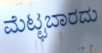
ಮೆಟ್ಟಬಾರದು